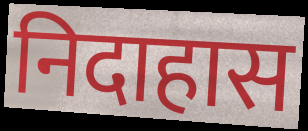
निदाहास